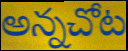
అన్నచోట